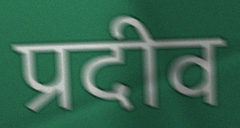
प्रदीव